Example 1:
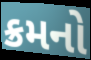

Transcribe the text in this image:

ક્રમનો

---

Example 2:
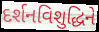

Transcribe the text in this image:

દર્શનવિશુદ્ધિને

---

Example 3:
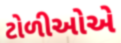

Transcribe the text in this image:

ટોળીઓએ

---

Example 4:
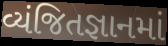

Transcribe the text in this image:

વ્યંજિતજ્ઞાનમાં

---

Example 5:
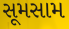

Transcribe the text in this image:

સૂમસામ